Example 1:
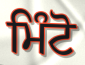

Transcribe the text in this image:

ਮਿੰਟੋ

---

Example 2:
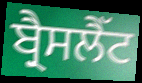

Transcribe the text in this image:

ਬ੍ਰੈਸਲੈੱਟ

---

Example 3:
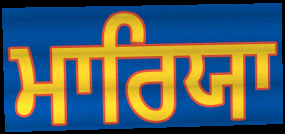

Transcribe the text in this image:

ਮਾਰਿਯਾ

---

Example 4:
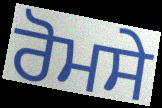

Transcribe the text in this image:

ਰੋਮਸੇ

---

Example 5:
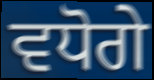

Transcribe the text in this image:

ਵਧੋਗੇ